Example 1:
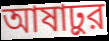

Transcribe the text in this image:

আষাঢ়ুর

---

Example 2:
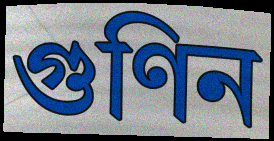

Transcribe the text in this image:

গুণিন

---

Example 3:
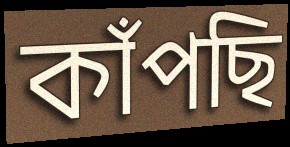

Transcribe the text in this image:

কাঁপছি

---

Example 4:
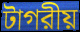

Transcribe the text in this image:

টাগরীয়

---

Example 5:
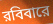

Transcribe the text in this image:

রবিবারে